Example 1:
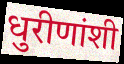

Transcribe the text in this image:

धुरीणांशी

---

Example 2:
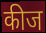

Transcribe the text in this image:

कीज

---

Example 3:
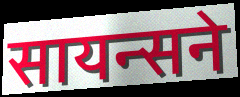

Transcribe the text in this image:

सायन्सने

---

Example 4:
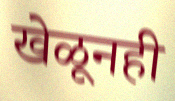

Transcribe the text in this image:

खेळूनही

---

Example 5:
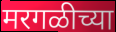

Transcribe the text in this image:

मरगळीच्या